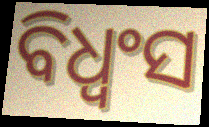
ବିଧ୍ଵଂସ